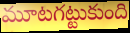
మూటగట్టుకుంది